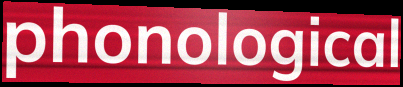
phonological